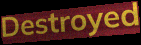
Destroyed